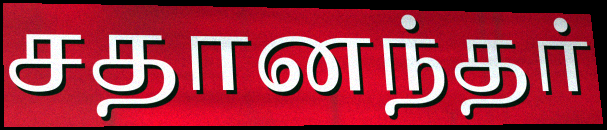
சதானந்தர்